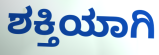
ಶಕ್ತಿಯಾಗಿ